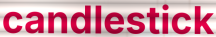
candlestick